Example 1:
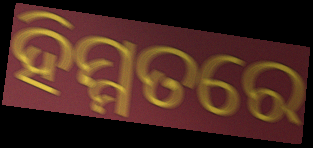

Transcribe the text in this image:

ହିମ୍ମତରେ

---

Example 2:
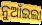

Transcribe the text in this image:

ନୁଆଁଇଲା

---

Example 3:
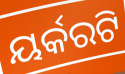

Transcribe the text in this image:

ୟର୍କରଟି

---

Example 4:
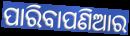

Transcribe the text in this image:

ପାରିବାପଣିଆର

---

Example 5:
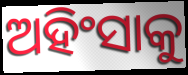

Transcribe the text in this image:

ଅହିଂସାକୁ